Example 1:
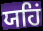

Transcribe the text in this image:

ਯਹਿਂ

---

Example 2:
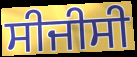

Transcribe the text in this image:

ਸੀਜੀਸੀ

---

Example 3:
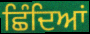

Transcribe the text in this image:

ਛਿੰਦਿਆਂ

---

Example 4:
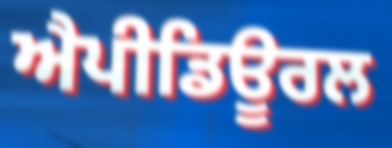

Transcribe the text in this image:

ਐਪੀਡਿਊਰਲ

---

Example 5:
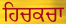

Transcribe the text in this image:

ਹਿਚਕਚਾ